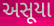
અસૂયા